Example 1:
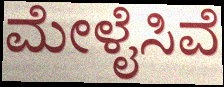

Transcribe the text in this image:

ಮೇಳೈಸಿವೆ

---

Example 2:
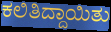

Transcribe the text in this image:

ಕಲಿತಿದ್ದಾಯಿತು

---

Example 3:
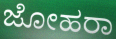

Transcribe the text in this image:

ಜೋಹರಾ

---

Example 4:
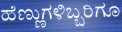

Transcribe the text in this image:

ಹೆಣ್ಣುಗಳಿಬ್ಬರಿಗೂ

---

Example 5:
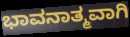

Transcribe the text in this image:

ಭಾವನಾತ್ಮವಾಗಿ